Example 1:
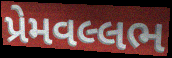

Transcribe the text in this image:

પ્રેમવલ્લભ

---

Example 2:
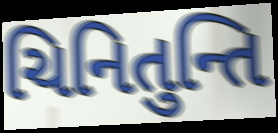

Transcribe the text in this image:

ચિનિતુન્તિ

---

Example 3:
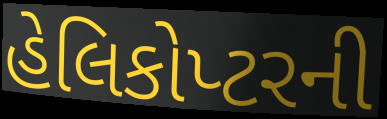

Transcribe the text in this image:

હેલિકોપ્ટરની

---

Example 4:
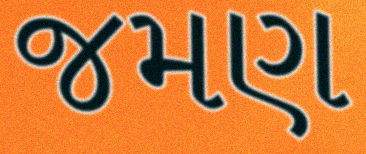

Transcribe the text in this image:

જમણ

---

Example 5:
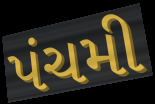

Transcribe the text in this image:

પંચમી